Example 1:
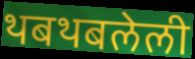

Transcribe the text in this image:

थबथबलेली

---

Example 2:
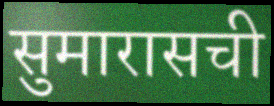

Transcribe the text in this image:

सुमारासची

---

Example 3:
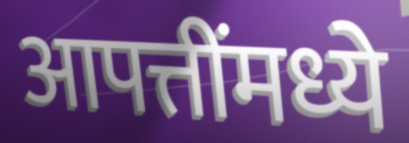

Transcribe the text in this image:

आपत्तींमध्ये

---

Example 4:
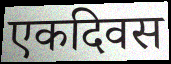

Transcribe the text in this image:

एकदिवस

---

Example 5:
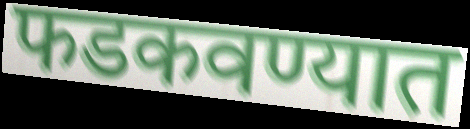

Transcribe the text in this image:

फडकवण्यात